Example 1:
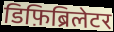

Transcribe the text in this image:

डिफ़िब्रिलेटर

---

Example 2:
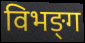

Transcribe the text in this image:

विभङ्ग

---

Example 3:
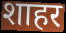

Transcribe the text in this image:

शाहर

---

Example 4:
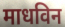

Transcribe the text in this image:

माधविन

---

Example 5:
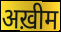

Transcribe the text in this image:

अख़ीम